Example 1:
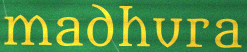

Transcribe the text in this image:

madhura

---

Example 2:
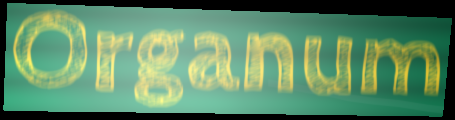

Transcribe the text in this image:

Organum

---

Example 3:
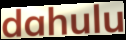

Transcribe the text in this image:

dahulu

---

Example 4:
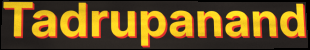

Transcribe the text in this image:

Tadrupanand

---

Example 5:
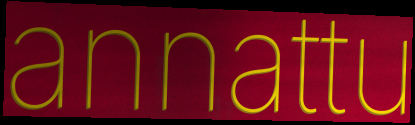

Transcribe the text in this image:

annattu